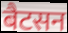
बैटसन